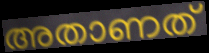
അതാണത്